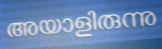
അയാളിരുന്നു